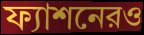
ফ্যাশনেরও